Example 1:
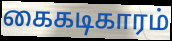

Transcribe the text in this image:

கைகடிகாரம்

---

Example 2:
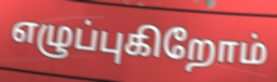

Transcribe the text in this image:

எழுப்புகிறோம்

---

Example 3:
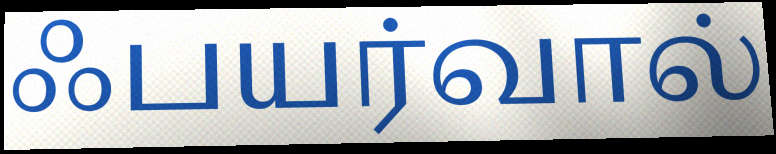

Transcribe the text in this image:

ஃபயர்வால்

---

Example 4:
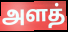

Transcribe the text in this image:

அளத்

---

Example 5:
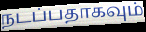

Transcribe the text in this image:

நடப்பதாகவும்